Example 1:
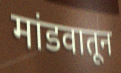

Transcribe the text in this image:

मांडवातून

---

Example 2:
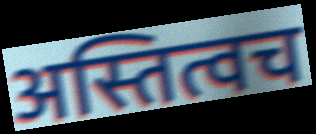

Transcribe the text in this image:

अस्तित्वच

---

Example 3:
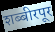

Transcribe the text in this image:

शब्बीरपूर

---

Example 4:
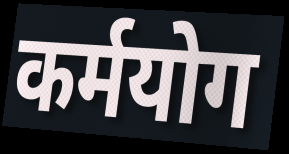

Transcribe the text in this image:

कर्मयोग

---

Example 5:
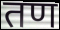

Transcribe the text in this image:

तण